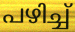
പഴിച്ച്